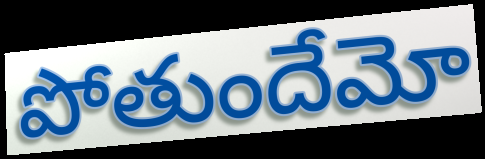
పోతుందేమో